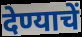
देण्याचें